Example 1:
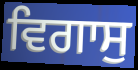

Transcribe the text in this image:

ਵਿਗਾਸੁ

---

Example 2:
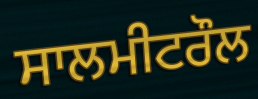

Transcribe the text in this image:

ਸਾਲਮੀਟਰੌਲ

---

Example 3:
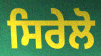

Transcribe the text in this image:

ਸਿਰੇਲੋ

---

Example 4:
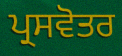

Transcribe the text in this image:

ਪ੍ਰਸਵੋਤਰ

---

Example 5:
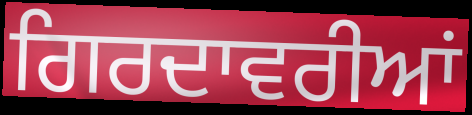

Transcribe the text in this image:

ਗਿਰਦਾਵਰੀਆਂ